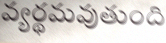
వ్యర్థమవుతుంది